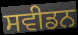
ਸਵੀਡਨ